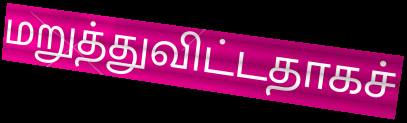
மறுத்துவிட்டதாகச்